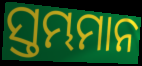
ସ୍ତମ୍ଭମାନ